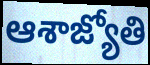
ఆశాజ్యోతి